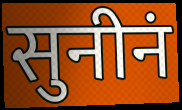
सुनीनं